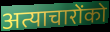
अत्याचारोंको